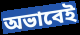
অভাবেই